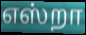
எஸ்றா